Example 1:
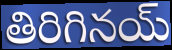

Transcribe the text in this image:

తిరిగినయ్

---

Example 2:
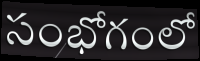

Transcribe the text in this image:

సంభోగంలో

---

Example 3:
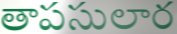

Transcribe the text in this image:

తాపసులార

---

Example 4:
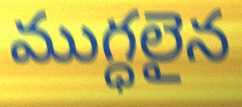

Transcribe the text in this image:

ముగ్ధలైన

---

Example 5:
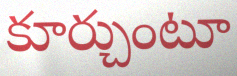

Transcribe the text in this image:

కూర్చుంటూ